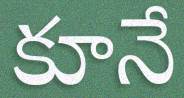
కూనే